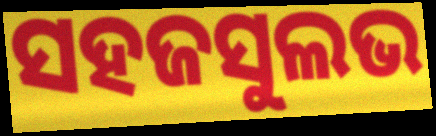
ସହଜସୁଲଭ